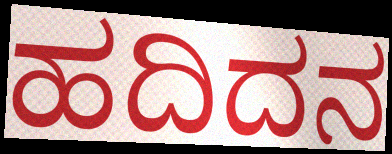
ಹದಿದನ